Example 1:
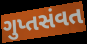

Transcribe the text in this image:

ગુપ્તસંવત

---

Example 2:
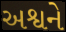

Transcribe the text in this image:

અશ્વને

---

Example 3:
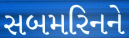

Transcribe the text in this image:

સબમરિનને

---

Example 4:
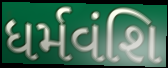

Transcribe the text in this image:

ધર્મવંશિ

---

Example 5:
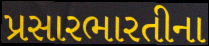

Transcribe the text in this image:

પ્રસારભારતીના